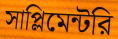
সাপ্লিমেন্টরি